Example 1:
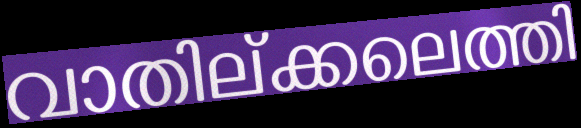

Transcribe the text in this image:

വാതില്ക്കലെത്തി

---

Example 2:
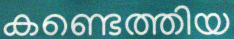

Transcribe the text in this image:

കണ്ടെത്തിയ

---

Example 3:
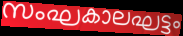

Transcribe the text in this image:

സംഘകാലഘട്ടം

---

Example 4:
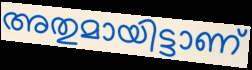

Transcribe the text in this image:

അതുമായിട്ടാണ്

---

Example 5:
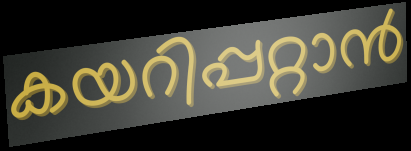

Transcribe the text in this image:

കയറിപ്പറ്റാൻ